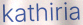
kathiria